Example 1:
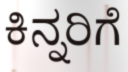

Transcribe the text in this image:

ಕಿನ್ನರಿಗೆ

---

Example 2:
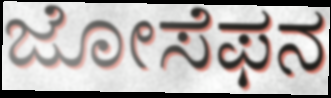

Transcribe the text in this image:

ಜೋಸೆಫನ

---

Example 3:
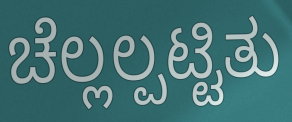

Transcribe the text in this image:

ಚೆಲ್ಲಲ್ಪಟ್ಟಿತು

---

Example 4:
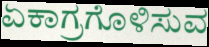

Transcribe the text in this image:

ಏಕಾಗ್ರಗೊಳಿಸುವ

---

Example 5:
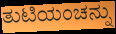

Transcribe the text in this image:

ತುಟಿಯಂಚನ್ನು